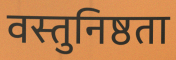
वस्तुनिष्ठता